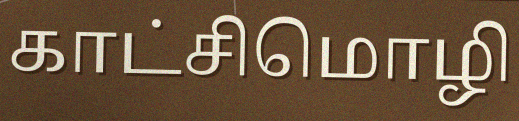
காட்சிமொழி